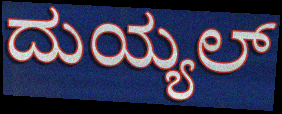
ದುಯ್ಯಲ್